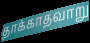
தாக்காதவாறு